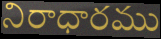
నిరాధారము